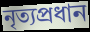
নৃত্যপ্রধান